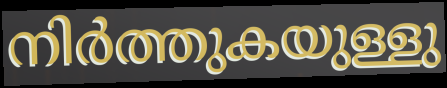
നിർത്തുകയുള്ളു